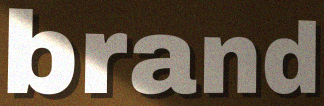
brand